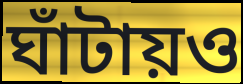
ঘাঁটায়ও